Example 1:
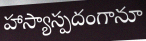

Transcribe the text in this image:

హాస్యాస్పదంగానూ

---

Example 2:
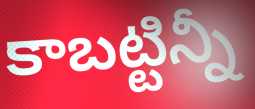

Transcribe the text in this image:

కాబట్టిన్నీ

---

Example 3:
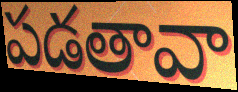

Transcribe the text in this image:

పడతావా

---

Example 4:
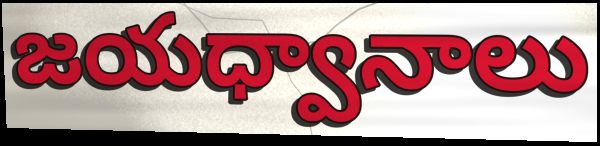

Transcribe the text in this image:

జయధ్వానాలు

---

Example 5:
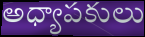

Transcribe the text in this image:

అధ్యాపకులు